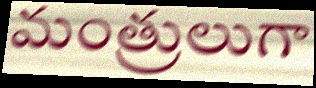
మంత్రులుగా